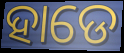
ହାଡେ